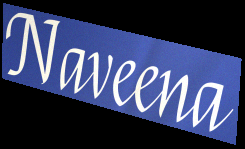
Naveena